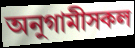
অনুগামীসকল